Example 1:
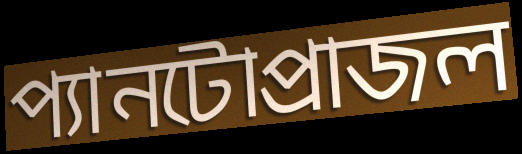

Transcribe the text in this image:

প্যানটোপ্রাজল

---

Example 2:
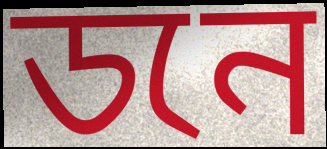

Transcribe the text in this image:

ডনে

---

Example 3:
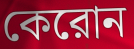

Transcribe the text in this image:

কেরোন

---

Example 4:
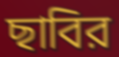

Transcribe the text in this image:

ছাবির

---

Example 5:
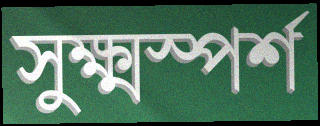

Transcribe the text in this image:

সুক্ষ্মস্পর্শ